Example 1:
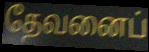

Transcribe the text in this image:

தேவனைப்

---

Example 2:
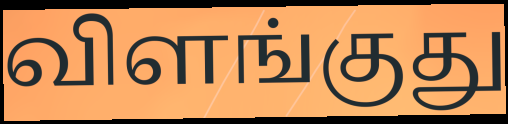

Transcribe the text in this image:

விளங்குது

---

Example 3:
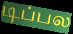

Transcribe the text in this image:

டிப்பல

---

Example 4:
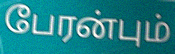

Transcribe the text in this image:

பேரன்பும்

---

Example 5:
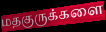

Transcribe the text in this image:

மதகுருக்களை